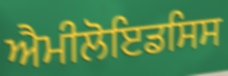
ਐਮੀਲੋਇਡਸਿਸ